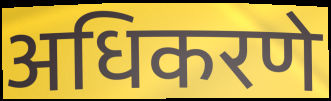
अधिकरणे